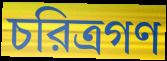
চরিত্রগণ